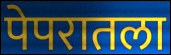
पेपरातला